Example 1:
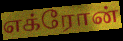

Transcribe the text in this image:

எக்ரோன்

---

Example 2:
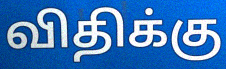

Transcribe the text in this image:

விதிக்கு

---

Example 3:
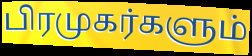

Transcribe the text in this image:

பிரமுகர்களும்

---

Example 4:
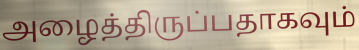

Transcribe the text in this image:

அழைத்திருப்பதாகவும்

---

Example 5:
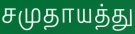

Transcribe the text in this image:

சமுதாயத்து